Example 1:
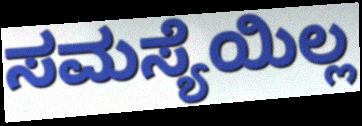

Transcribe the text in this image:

ಸಮಸ್ಯೆಯಿಲ್ಲ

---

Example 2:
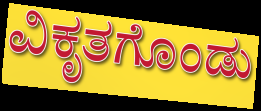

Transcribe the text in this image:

ವಿಕೃತಗೊಂಡು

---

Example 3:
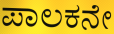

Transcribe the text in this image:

ಪಾಲಕನೇ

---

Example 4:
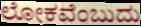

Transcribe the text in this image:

ಲೋಕವೆಂಬುದು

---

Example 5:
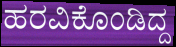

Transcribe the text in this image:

ಹರವಿಕೊಂಡಿದ್ದ